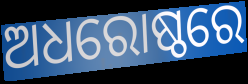
ଅଧରୋଷ୍ଠରେ